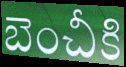
బెంచీకి